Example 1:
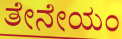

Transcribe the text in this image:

ತೇನೇಯಂ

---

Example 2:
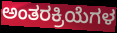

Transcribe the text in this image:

ಅಂತರಕ್ರಿಯೆಗಳ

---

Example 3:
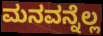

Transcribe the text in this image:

ಮನವನ್ನೆಲ್ಲ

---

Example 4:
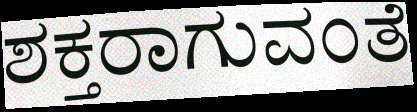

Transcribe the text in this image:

ಶಕ್ತರಾಗುವಂತೆ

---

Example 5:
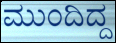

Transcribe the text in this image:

ಮುಂದಿದ್ದ